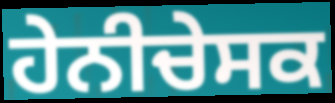
ਹੇਨੀਚੇਸਕ